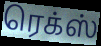
ரெக்ஸ்